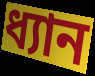
ধ্যান